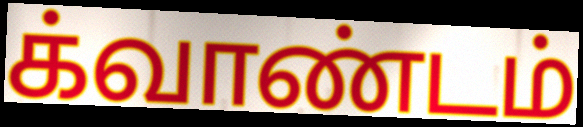
க்வாண்டம்